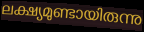
ലക്ഷ്യമുണ്ടായിരുന്നു